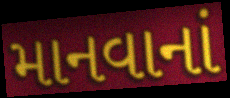
માનવાનાં